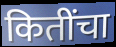
कितींचा